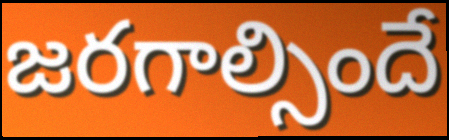
జరగాల్సిందే